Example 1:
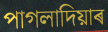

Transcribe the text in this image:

পাগলাদিয়াৰ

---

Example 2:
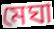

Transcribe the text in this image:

মেঘা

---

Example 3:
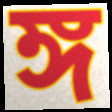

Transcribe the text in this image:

ঙ্গ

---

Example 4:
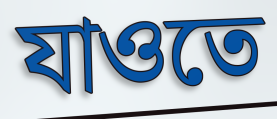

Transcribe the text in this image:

যাওতে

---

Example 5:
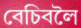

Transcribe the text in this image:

বেচিবলৈ